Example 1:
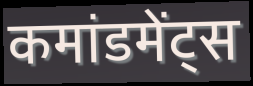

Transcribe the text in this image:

कमांडमेंट्स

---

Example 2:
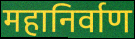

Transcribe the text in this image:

महानिर्वाण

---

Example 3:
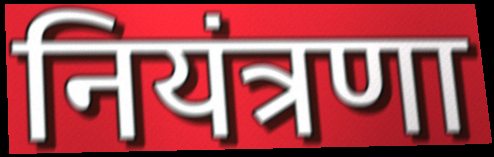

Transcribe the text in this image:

नियंत्रणा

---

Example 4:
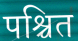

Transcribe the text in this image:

पश्चित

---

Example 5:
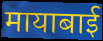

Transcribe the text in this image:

मायाबाई